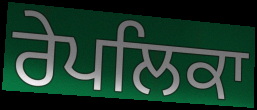
ਰੇਪਲਿਕਾ